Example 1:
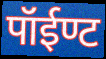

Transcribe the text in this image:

पॉईण्ट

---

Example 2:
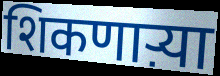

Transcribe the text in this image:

शिकणाऱ्‍या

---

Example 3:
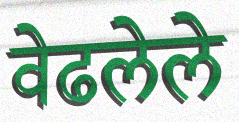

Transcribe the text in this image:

वेढलेले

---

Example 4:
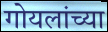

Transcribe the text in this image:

गोयलांच्या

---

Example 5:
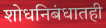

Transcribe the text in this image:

शोधनिबंधातही